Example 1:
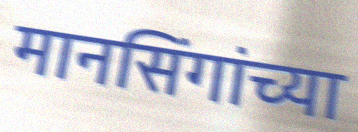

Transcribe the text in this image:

मानसिंगांच्या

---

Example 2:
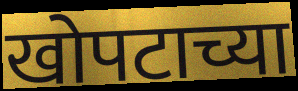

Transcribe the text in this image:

खोपटाच्या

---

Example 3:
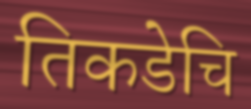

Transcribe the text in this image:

तिकडेचि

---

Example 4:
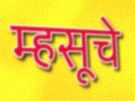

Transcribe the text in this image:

म्हसूचे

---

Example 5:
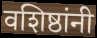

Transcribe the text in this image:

वशिष्ठांनी